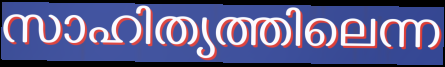
സാഹിത്യത്തിലെന്ന